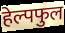
हेल्पफुल